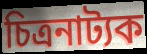
চিত্ৰনাট্যক